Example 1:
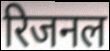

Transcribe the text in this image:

रिजनल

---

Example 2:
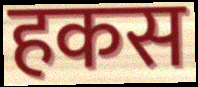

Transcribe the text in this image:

हकस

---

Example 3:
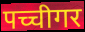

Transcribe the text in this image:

पच्चीगर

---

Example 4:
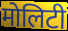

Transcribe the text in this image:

मोलिटी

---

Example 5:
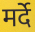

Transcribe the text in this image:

मर्दे